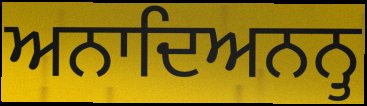
ਅਨਾਦਿਅਨਨ੍ਤ